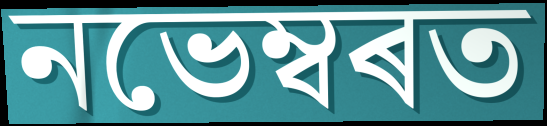
নভেম্বৰত